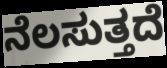
ನೆಲಸುತ್ತದೆ